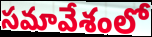
సమావేశంలో